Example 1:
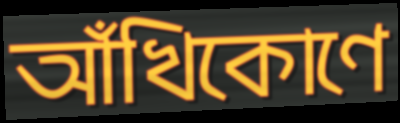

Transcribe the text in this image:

আঁখিকোণে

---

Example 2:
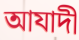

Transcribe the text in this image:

আযাদী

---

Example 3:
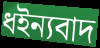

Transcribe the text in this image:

ধইন্যবাদ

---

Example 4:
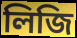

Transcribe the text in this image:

লিজি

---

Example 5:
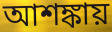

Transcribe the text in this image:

আশঙ্কায়